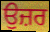
ਉਜ਼ਰ